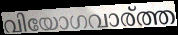
വിയോഗവാര്ത്ത